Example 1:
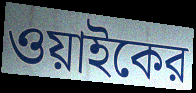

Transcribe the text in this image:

ওয়াইকের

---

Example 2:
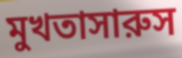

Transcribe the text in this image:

মুখতাসারুস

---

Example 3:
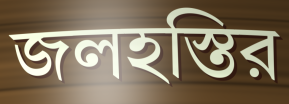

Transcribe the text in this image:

জলহস্তির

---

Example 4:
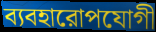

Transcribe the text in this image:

ব্যবহারোপযোগী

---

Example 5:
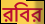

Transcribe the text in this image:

রবির